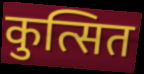
कुत्सित